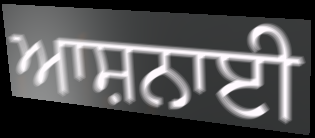
ਆਸ਼ਨਾਈ